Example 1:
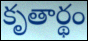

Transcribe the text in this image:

కృతార్థం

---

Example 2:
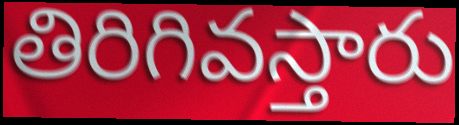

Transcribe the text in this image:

తిరిగివస్తారు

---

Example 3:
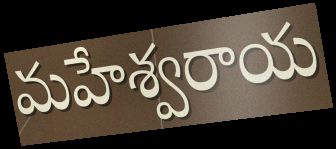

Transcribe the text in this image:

మహేశ్వరాయ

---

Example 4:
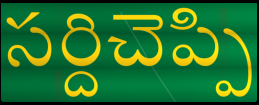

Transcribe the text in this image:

సర్దిచెప్పి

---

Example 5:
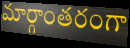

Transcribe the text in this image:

మార్గాంతరంగా